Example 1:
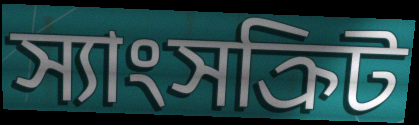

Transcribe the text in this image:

স্যাংসক্রিট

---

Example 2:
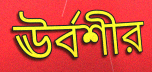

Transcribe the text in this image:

ঊর্বশীর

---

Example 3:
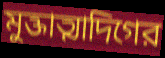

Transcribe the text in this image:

মুক্তাত্মাদিগের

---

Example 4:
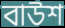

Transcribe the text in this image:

বাউশ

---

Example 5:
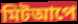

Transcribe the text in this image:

মিটআপে